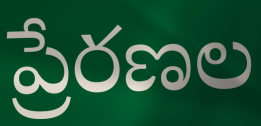
ప్రేరణల